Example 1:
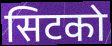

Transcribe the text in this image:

सिटको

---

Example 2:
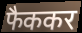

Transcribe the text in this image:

फैककर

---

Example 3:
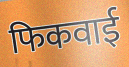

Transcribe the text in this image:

फिकवाई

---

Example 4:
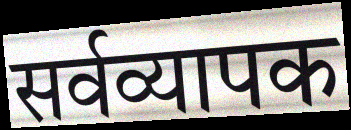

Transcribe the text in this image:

सर्वव्यापक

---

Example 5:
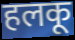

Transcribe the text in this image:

हलकू